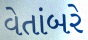
વેતાંબરે